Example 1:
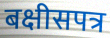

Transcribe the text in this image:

बक्षीसपत्र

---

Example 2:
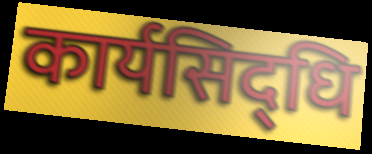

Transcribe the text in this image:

कार्यसिद्धि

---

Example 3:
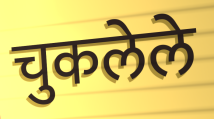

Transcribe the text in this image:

चुकलेले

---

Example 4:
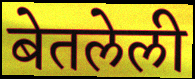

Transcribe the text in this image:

बेतलेली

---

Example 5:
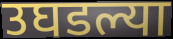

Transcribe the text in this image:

उघडल्या